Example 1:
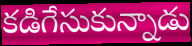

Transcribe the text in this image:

కడిగేసుకున్నాడు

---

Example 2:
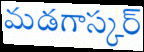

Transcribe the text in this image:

మడగాస్కర్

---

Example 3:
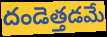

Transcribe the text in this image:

దండెత్తడమే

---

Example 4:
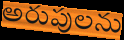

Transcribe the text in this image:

అరుపులను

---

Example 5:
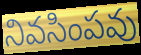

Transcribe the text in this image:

నివసింపవు